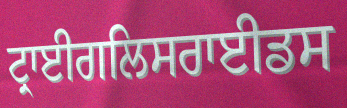
ਟ੍ਰਾਈਗਲਿਸਰਾਈਡਸ